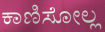
ಕಾಣಿಸೋಲ್ಲ